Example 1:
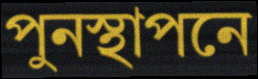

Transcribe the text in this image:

পুনস্থাপনে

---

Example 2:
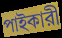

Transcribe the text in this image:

পাইকারী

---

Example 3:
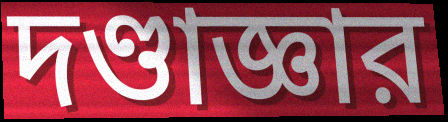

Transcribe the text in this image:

দণ্ডাজ্ঞার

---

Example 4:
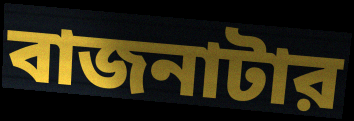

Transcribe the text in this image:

বাজনাটার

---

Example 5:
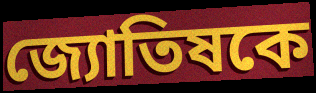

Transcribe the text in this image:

জ্যোতিষকে